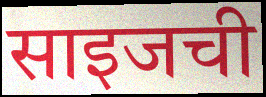
साइजची